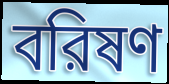
বরিষণ